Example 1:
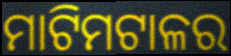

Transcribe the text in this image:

ମାଟିମଟାଳର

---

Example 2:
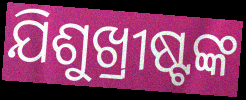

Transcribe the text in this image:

ଯିଶୁଖ୍ରୀଷ୍ଟଙ୍କ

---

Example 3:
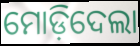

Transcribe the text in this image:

ମୋଡ଼ିଦେଲା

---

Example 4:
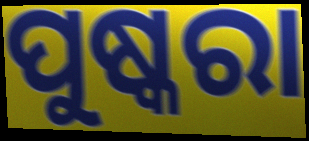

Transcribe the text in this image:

ପୁଷ୍କରା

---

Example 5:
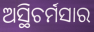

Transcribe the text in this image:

ଅସ୍ଥିଚର୍ମସାର